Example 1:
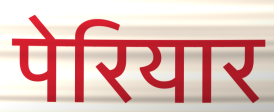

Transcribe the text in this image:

पेरियार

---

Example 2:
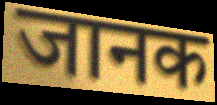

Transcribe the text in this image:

जानक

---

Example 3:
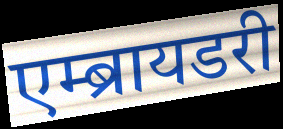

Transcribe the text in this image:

एम्ब्रायडरी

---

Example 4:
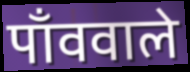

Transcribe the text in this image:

पाँववाले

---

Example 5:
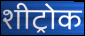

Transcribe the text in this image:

शीट्रोक